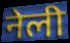
नेली